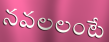
నవలలంటే